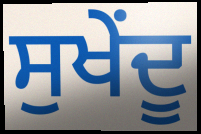
ਸੁਖੇਂਦੂ